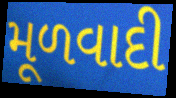
મૂળવાદી